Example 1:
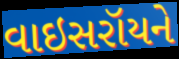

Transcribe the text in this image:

વાઇસરૉયને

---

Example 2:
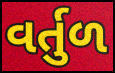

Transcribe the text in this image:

વર્તુળ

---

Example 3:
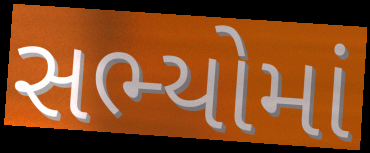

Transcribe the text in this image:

સભ્યોમાં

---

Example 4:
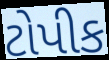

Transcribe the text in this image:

ટોપીક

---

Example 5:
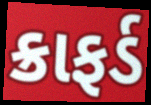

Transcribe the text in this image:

ક્રાફર્ડ